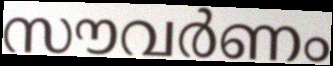
സൗവർണം